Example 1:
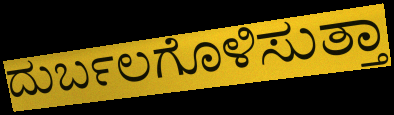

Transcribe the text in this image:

ದುರ್ಬಲಗೊಳಿಸುತ್ತಾ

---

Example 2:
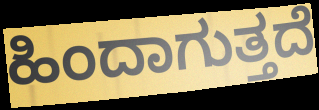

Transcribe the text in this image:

ಹಿಂದಾಗುತ್ತದೆ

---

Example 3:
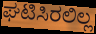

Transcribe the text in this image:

ಘಟಿಸಿರಲಿಲ್ಲ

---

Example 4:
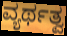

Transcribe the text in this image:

ವ್ಯರ್ಥತ್ವ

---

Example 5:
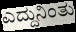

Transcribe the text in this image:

ಎದ್ದುನಿಂತು